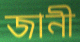
জানী